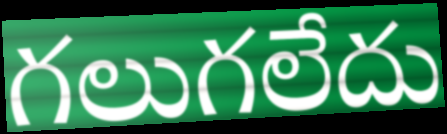
గలుగలేదు